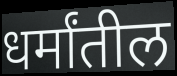
धर्मांतील